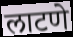
लाटणे